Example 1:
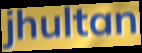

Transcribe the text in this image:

jhultan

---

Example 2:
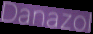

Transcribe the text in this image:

Danazol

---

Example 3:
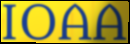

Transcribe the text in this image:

IOAA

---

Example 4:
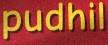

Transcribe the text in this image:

pudhil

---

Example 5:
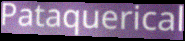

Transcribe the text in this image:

Pataquerical